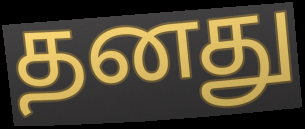
தனது